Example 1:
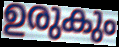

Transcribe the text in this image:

ഉരുകും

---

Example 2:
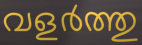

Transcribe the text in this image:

വളർത്തു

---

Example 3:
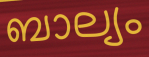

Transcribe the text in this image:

ബാല്യം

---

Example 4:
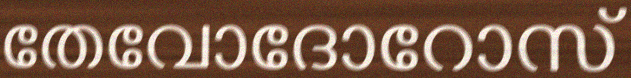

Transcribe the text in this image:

തേവോദോറോസ്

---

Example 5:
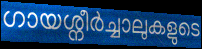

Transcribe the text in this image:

ഗായശ്നീർച്ചാലുകളുടെ